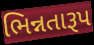
ભિન્નતારૂપ